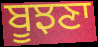
ਬੂਝਣਾ